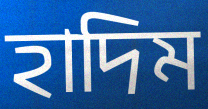
হাদিম